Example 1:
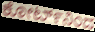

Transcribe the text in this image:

ಕೋರ್ಟ್‌ನಿಂದ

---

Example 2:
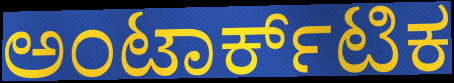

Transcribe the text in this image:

ಅಂಟಾರ್ಕ್‍ಟಿಕ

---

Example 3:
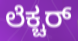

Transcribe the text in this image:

ಲೆಕ್ಚರ್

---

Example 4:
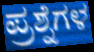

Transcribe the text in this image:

ಪ್ರಶ್ನೆಗಳ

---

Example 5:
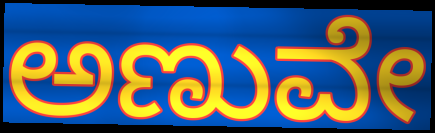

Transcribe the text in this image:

ಅಣುವೇ